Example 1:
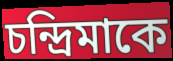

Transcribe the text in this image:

চন্দ্রিমাকে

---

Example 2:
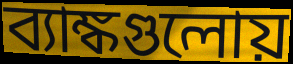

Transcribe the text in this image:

ব্যাঙ্কগুলোয়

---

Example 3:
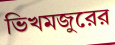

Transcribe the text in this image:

ভিখমজুরের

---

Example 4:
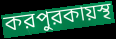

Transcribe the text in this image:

করপুরকায়স্থ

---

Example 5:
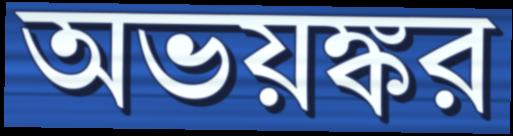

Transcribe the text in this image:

অভয়ঙ্কর